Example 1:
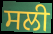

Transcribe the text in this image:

ਸਲੀ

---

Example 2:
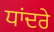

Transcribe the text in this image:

ਧਾਂਦਰੇ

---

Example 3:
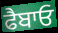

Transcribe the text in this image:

ਫੈਬਾਓ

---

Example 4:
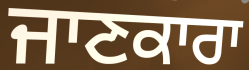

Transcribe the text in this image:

ਜਾਣਕਾਰਾ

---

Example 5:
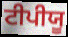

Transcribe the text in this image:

ਟੀਪੀਯੂ